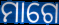
ମାଗେ